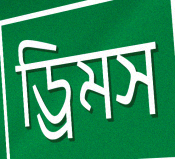
ড্রিমস